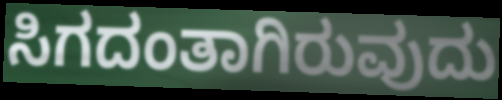
ಸಿಗದಂತಾಗಿರುವುದು